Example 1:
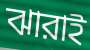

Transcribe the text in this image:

ঝারাই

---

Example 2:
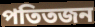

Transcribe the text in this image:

পতিতজন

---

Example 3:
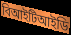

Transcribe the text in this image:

বিআইটিআইডি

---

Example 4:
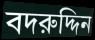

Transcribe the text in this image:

বদরুদ্দিন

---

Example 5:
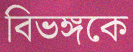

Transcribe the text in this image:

বিভঙ্গকে